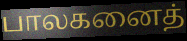
பாலகனைத்